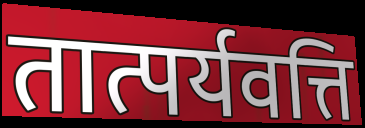
तात्पर्यवत्ति